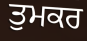
ਤੁਮਕਰ